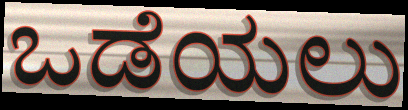
ಒಡೆಯಲು